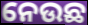
ନେଉଛ